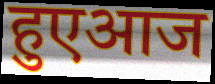
हुएआज